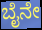
ಬೈನೇ